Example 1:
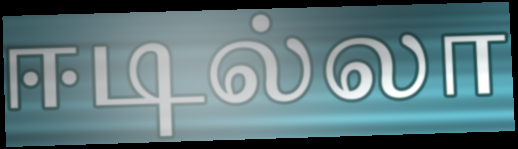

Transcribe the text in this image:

ஈடில்லா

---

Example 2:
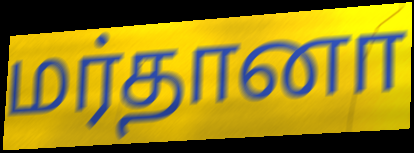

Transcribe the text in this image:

மர்தானா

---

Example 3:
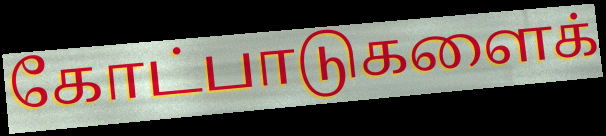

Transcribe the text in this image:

கோட்பாடுகளைக்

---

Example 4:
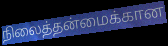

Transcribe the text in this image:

நிலைத்தன்மைக்கான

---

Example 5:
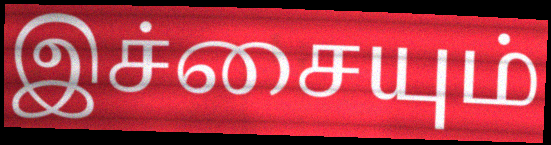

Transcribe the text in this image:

இச்சையும்